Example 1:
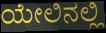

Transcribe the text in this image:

ಯೇಲಿನಲ್ಲಿ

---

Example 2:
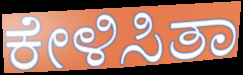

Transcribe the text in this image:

ಕೇಳಿಸಿತಾ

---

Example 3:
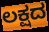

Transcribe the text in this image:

ಲಕ್ಷದ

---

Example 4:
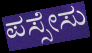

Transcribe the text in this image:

ಪಸ್ಸೇಸು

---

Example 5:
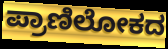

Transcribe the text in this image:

ಪ್ರಾಣಿಲೋಕದ